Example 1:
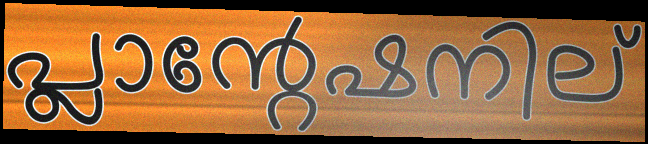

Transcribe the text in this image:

പ്ലാന്റേഷനില്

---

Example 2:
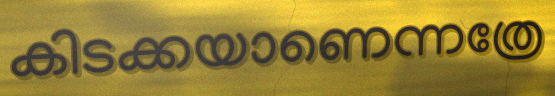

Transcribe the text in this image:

കിടക്കയാണെന്നത്രേ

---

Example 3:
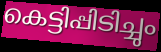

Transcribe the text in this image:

കെട്ടിപ്പിടിച്ചും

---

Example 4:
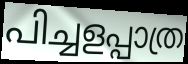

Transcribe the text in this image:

പിച്ചളപ്പാത്ര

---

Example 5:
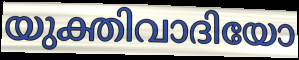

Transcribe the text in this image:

യുക്തിവാദിയോ